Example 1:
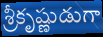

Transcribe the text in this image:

శ్రీకృష్ణుడుగా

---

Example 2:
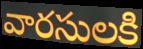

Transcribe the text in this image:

వారసులకి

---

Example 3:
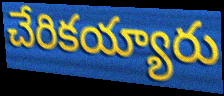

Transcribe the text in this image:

చేరికయ్యారు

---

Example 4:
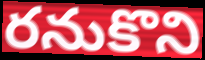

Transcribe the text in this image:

రనుకొని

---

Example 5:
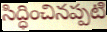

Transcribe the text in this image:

సిద్ధించినప్పటి